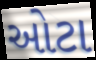
ઓટા